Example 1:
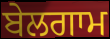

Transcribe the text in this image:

ਬੇਲਗਾਮ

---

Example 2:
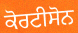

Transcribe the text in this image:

ਕੋਰਟੀਸੋਨ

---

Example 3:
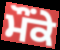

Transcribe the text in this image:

ਮੌੰਕੇ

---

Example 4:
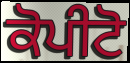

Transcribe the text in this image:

ਕੋਪੀਟੋ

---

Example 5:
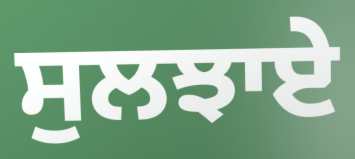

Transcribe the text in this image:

ਸੁਲਝਾਏ